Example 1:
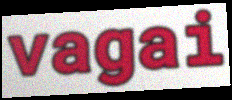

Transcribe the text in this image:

vagai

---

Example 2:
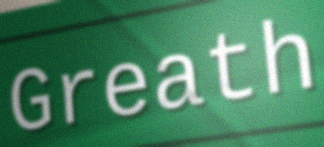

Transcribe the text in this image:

Greath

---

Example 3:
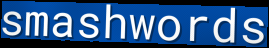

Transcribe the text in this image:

smashwords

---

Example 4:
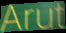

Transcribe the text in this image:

Arut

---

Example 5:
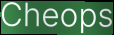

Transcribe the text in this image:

Cheops